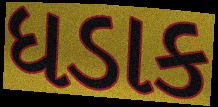
ધડાક